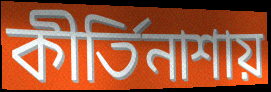
কীর্তিনাশায়